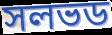
সলভড